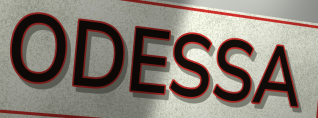
ODESSA